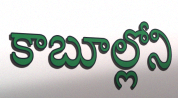
కాబూల్లోని